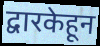
द्वारकेहून